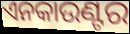
ଏନକାଉଣ୍ଟର